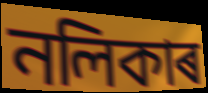
নলিকাৰ